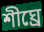
শীঘ্ৰে